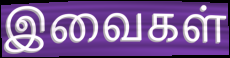
இவைகள்